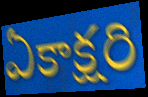
ఏకాక్షరి